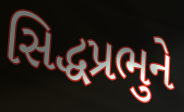
સિદ્ધપ્રભુને